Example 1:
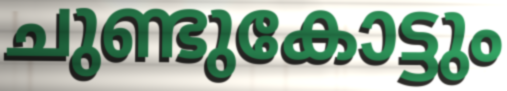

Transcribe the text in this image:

ചുണ്ടുകോട്ടും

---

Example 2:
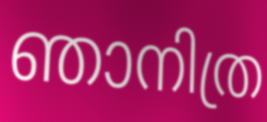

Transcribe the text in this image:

ഞാനിത്ര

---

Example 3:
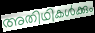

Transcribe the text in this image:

അതിഥികൾക്കും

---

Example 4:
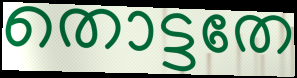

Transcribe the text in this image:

തൊട്ടതേ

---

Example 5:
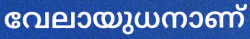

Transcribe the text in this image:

വേലായുധനാണ്